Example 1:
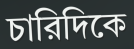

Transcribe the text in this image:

চারিদিকে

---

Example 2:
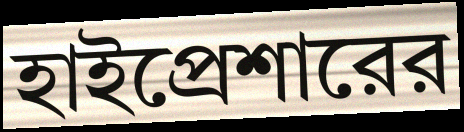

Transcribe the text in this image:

হাইপ্রেশারের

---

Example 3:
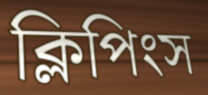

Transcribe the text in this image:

ক্লিপিংস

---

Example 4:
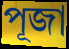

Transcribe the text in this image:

পূজা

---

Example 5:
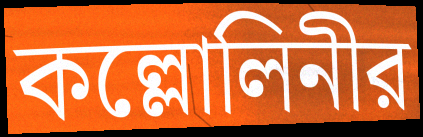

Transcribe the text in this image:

কল্লোলিনীর